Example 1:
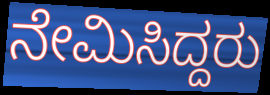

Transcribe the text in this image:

ನೇಮಿಸಿದ್ದರು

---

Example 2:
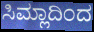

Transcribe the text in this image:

ಸಿಮ್ಲಾದಿಂದ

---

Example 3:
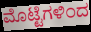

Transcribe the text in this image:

ಮೊಟ್ಟೆಗಳಿಂದ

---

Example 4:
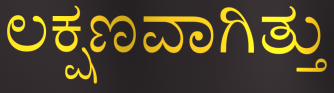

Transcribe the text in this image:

ಲಕ್ಷಣವಾಗಿತ್ತು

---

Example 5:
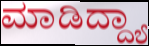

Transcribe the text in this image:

ಮಾಡಿದ್ದ್ಯಾ